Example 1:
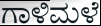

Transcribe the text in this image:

ಗಾಳಿಮಳೆ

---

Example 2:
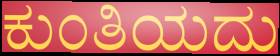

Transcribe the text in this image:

ಕುಂತಿಯದು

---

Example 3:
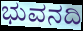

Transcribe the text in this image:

ಭುವನದಿ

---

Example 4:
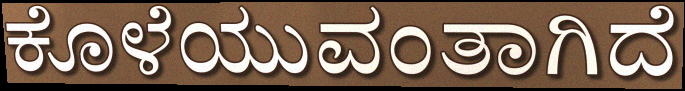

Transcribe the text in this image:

ಕೊಳೆಯುವಂತಾಗಿದೆ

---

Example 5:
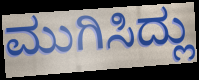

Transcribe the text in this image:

ಮುಗಿಸಿದ್ಲು